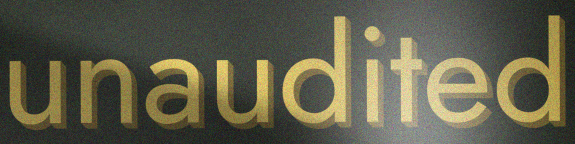
unaudited